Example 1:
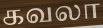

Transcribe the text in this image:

கவலா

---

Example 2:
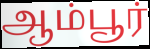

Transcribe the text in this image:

ஆம்பூர்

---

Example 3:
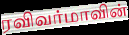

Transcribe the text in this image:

ரவிவர்மாவின்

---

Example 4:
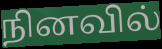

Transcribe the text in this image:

நினவில்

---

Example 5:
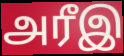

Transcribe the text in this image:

அரீஇ